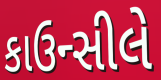
કાઉન્સીલે